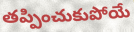
తప్పించుకుపోయే